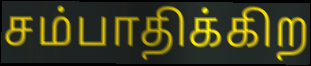
சம்பாதிக்கிற